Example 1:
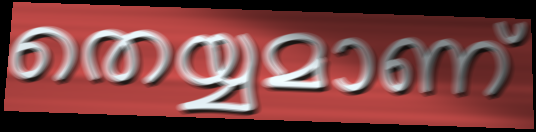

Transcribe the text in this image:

തെയ്യമാണ്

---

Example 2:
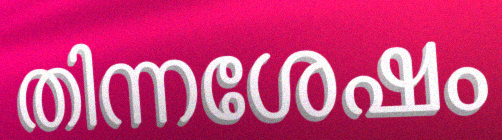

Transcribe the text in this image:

തിന്നശേഷം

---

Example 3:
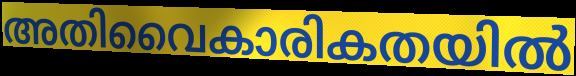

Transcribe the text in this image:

അതിവൈകാരികതയിൽ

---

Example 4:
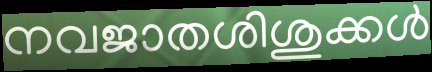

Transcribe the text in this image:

നവജാതശിശുക്കൾ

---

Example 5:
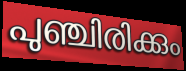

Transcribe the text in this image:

പുഞ്ചിരിക്കും